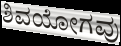
ಶಿವಯೋಗವು